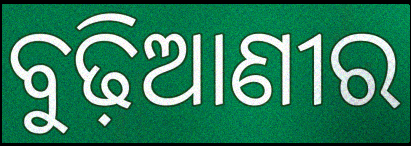
ବୁଢ଼ିଆଣୀର